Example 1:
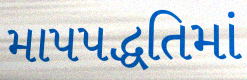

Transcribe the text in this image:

માપપદ્ધતિમાં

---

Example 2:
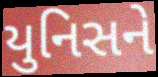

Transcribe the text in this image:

યુનિસને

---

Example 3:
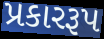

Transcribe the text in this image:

પ્રકારરૂપ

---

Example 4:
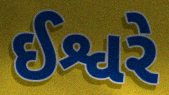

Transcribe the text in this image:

ઈશ્વરે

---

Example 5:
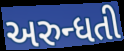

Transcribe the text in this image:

અરુન્ધતી